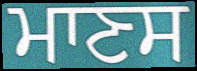
ਮਾਣਸ